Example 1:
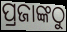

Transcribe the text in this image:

ପ୍ରଜାଙ୍କଠୁ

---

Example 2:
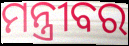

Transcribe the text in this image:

ମନ୍ତ୍ରୀବର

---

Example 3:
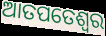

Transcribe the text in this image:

ଆତପତେଶ୍ୱର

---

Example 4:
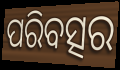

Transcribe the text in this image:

ପରିବତ୍ସର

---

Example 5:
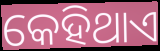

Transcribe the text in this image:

କେହିଥାଏ